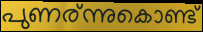
പുണര്ന്നുകൊണ്ട്